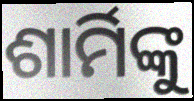
ଶାର୍ମିଙ୍କୁ